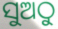
ସୁଅଠୁ